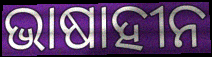
ଭାଷାହୀନ